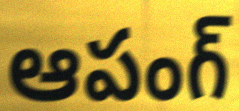
ఆపంగ్